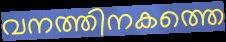
വനത്തിനകത്തെ